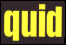
quid